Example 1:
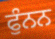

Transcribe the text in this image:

ਫੁੰਨਨ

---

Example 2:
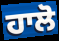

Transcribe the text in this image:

ਹਾਲੋ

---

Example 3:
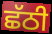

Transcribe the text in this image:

ਛੱਠੀ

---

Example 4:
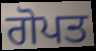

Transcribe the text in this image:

ਗੋਪਤ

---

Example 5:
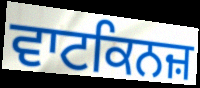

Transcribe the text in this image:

ਵਾਟਕਿਨਜ਼